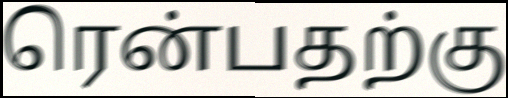
ரென்பதற்கு